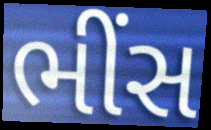
ભીંસ